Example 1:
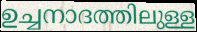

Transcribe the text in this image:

ഉച്ചനാദത്തിലുള്ള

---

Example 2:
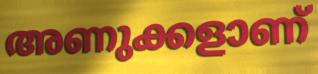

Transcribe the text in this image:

അണുക്കളാണ്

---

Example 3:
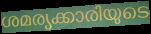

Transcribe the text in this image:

ശമര്യക്കാരിയുടെ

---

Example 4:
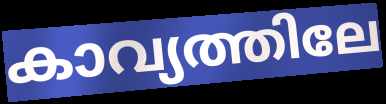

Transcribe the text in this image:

കാവ്യത്തിലേ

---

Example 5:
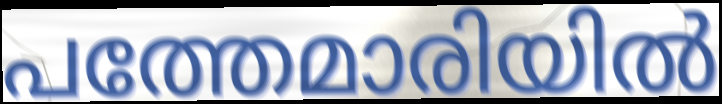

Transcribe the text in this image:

പത്തേമാരിയിൽ